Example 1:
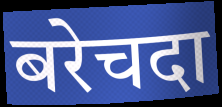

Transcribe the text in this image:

बरेचदा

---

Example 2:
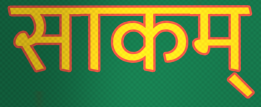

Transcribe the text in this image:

साकम्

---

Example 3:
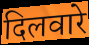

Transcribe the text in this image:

दिलवारे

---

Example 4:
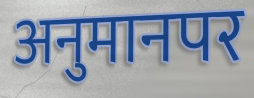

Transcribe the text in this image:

अनुमानपर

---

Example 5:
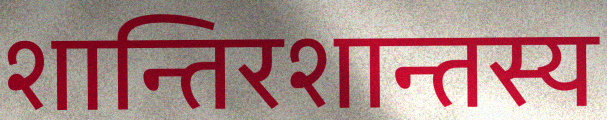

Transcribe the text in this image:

शान्तिरशान्तस्य